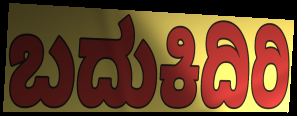
ಬದುಕಿದಿರಿ